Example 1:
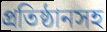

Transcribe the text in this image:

প্রতিষ্ঠানসহ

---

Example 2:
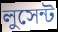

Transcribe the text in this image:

লুসেন্ট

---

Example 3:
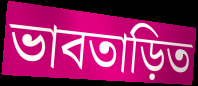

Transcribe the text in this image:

ভাবতাড়িত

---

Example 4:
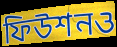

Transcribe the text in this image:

ফিউশনও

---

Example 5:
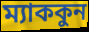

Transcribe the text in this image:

ম্যাককুন